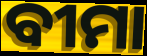
ବୀମା